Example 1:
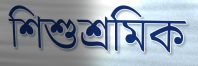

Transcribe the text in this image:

শিশুশ্রমিক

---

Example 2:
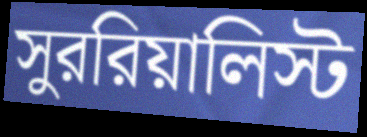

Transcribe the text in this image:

সুররিয়ালিস্ট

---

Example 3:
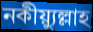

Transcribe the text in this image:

নকীয়্যুল্লাহ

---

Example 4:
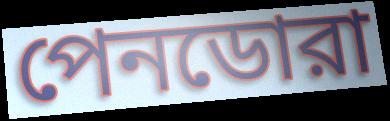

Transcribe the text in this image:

পেনডোরা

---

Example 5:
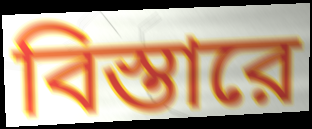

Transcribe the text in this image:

বিস্তারে